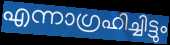
എന്നാഗ്രഹിച്ചിട്ടും